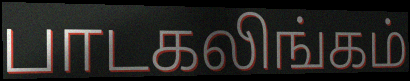
பாடகலிங்கம்